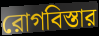
রোগবিস্তার